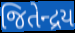
જિતેન્દ્રય